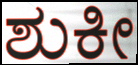
ಶುಕೀ